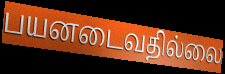
பயனடைவதில்லை